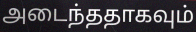
அடைந்ததாகவும்